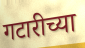
गटारीच्या